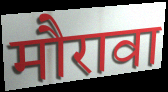
मौरावा